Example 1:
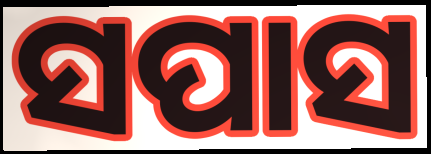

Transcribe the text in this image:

ସପାସ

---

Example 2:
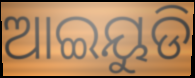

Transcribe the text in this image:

ଆଇୟୁଡି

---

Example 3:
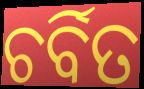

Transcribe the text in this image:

ଚର୍ବିତ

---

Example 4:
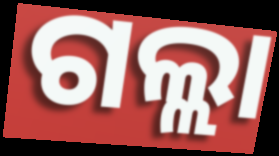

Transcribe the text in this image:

ଗଲ୍ଲା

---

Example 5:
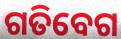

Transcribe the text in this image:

ଗତିବେଗ